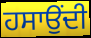
ਹਸਾਉਂਦੀ